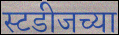
स्टडीजच्या